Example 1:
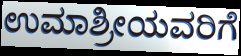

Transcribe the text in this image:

ಉಮಾಶ್ರೀಯವರಿಗೆ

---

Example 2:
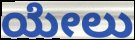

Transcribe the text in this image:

ಯೇಲು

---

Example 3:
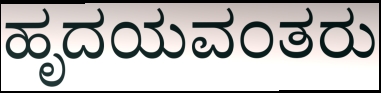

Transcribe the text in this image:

ಹೃದಯವಂತರು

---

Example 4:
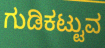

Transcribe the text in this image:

ಗುಡಿಕಟ್ಟುವ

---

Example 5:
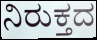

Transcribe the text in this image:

ನಿರುಕ್ತದ